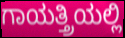
ಗಾಯತ್ತ್ರಿಯಲ್ಲಿ